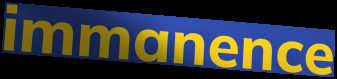
immanence